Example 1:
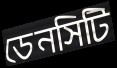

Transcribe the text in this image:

ডেনসিটি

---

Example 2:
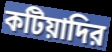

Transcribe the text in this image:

কটিয়াদির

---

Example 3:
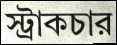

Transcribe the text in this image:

স্ট্রাকচার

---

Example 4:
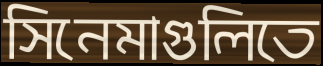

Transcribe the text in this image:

সিনেমাগুলিতে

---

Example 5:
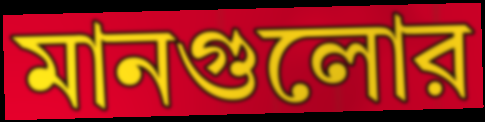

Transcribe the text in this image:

মানগুলোর